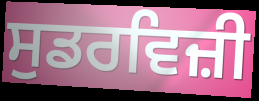
ਸੁਡਰਵਿਜ਼ੀ